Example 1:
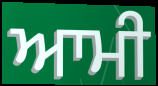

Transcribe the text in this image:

ਆਮੀ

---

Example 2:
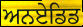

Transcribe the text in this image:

ਅਨਏਡਿਡ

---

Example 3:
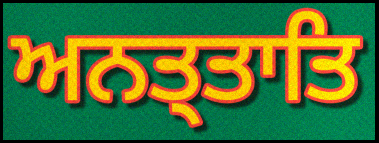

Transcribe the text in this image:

ਅਨਤ੍ਤਾਤਿ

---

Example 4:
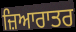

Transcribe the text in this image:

ਜ਼ਿਆਰਾਤਰ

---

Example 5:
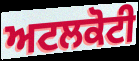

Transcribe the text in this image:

ਅਟਲਕੋਟੀ